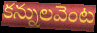
కన్నులవెంట